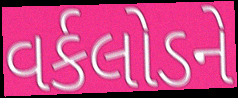
વર્કલોડને